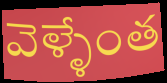
వెళ్ళేంత